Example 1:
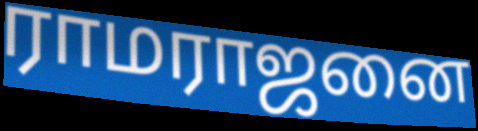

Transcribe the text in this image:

ராமராஜனை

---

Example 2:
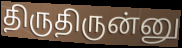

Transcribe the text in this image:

திருதிருன்னு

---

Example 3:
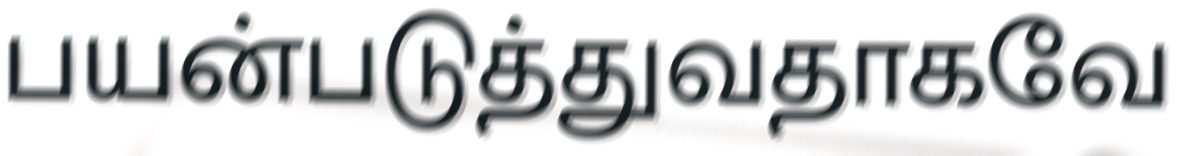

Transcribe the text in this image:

பயன்படுத்துவதாகவே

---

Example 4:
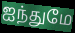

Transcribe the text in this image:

ஐந்துமே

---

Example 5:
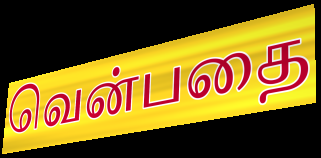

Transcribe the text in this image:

வென்பதை